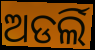
ଅଡର୍ଲି